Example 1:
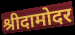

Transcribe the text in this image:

श्रीदामोदर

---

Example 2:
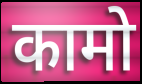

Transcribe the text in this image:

कामो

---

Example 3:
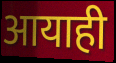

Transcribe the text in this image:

आयाही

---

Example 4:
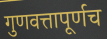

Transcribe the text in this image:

गुणवत्तापूर्णच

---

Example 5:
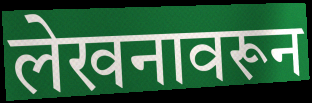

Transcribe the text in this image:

लेखनावरून